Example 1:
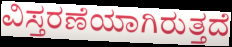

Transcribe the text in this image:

ವಿಸ್ತರಣೆಯಾಗಿರುತ್ತದೆ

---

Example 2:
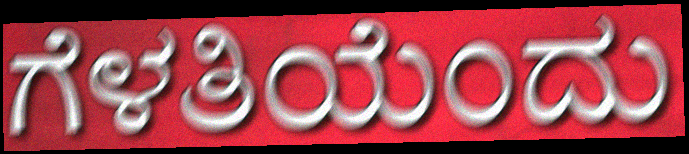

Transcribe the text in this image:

ಗೆಳತಿಯೆಂದು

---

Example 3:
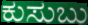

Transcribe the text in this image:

ಕುಸುಬು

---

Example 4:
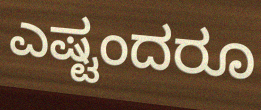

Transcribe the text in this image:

ಎಷ್ಟಂದರೂ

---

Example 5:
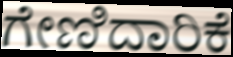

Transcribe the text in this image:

ಗೇಣಿದಾರಿಕೆ